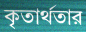
কৃতার্থতার